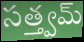
సత్త్వమ్